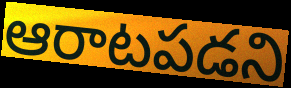
ఆరాటపడని